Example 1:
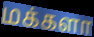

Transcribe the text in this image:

மக்களா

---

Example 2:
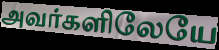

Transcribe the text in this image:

அவர்களிலேயே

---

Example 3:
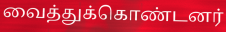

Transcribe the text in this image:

வைத்துக்கொண்டனர்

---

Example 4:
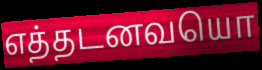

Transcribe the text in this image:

எத்தடனவயொ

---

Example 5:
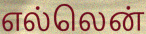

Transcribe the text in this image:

எல்லென்